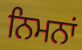
ਨਿਮਨਾਂ